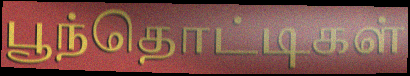
பூந்தொட்டிகள்